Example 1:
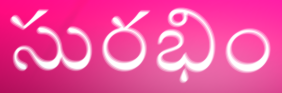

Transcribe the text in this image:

సురభిం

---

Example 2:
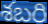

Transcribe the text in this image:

శబరి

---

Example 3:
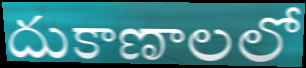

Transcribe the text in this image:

దుకాణాలలో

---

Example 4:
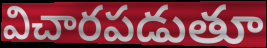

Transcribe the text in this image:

విచారపడుతూ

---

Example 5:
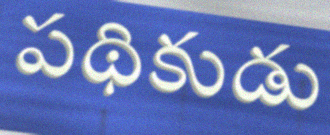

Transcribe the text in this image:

పథికుడు